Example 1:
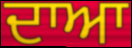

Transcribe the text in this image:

ਦਾਆ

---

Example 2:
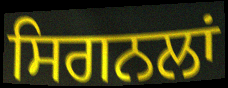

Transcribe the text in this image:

ਸਿਗਨਲਾਂ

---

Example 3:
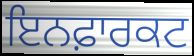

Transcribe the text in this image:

ਇਨਫ਼ਾਰਕਟ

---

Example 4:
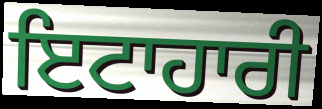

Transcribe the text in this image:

ਇਟਾਹਾਰੀ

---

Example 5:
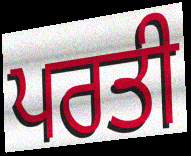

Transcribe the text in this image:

ਪਰਤੀ